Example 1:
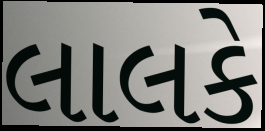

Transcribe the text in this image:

લાલકે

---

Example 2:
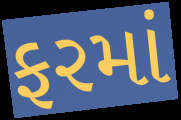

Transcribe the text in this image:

ફરમાં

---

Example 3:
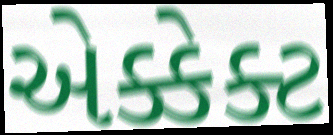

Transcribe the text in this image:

એક્કેક્ટ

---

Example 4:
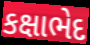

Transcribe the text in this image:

કક્ષાભેદ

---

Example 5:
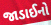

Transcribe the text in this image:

જાડાઈનો